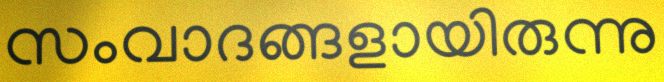
സംവാദങ്ങളായിരുന്നു